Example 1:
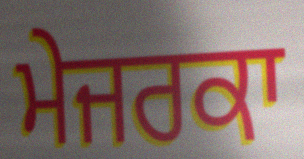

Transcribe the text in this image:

ਮੇਜਰਕਾ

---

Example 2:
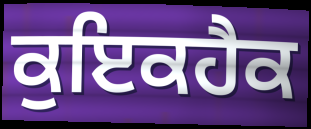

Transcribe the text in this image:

ਕੁਇਕਹੈਕ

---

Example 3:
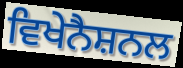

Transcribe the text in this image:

ਵਿਖੇਨੈਸ਼ਨਲ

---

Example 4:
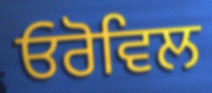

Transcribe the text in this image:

ਓਰੋਵਿਲ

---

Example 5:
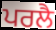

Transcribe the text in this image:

ਪਰਲੈ